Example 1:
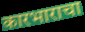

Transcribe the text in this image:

कारभाराचा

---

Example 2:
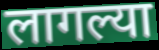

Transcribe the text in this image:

लागल्या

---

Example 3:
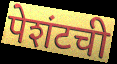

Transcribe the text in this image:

पेशंटची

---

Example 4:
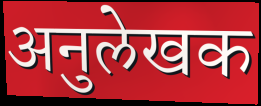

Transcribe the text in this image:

अनुलेखक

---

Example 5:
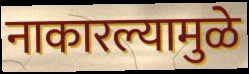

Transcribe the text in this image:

नाकारल्यामुळे